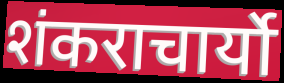
शंकराचार्यो